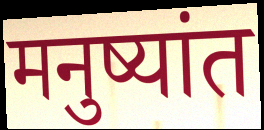
मनुष्यांत